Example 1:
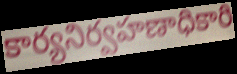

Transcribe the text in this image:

కార్యనిర్వహణాధికారి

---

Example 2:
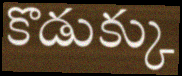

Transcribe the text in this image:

కొడుక్కు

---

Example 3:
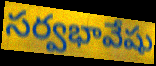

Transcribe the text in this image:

సర్వభావేషు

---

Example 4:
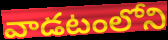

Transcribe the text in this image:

వాడటంలోని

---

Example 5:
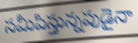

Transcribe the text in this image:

సమీపిస్తున్నపుడైనా